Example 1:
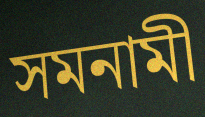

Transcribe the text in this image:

সমনামী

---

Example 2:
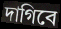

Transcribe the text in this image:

দাগিবে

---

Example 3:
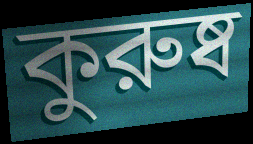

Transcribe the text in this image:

কুরুষ্ব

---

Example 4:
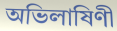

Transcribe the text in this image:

অভিলাষিণী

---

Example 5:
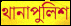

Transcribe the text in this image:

থানাপুলিশ